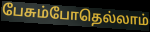
பேசும்போதெல்லாம்